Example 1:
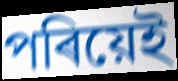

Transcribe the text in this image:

পৰিয়েই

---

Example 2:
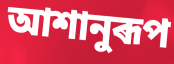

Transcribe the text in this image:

আশানুৰূপ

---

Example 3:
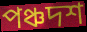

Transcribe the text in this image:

পঞ্চদশ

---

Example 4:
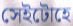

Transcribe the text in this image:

সেইটোহে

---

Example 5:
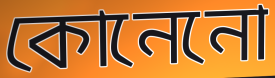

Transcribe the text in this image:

কোনেনো